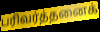
பரிவர்த்தனைக்